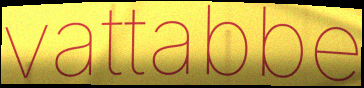
vattabbe